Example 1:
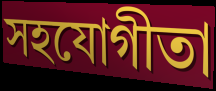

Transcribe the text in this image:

সহযোগীতা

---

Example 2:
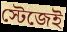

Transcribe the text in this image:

স্টেজেই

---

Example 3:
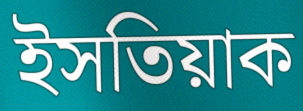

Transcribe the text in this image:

ইসতিয়াক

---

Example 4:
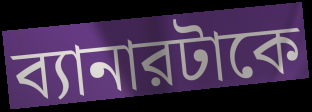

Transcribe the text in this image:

ব্যানারটাকে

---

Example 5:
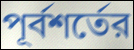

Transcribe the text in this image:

পূর্বশর্তের